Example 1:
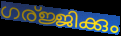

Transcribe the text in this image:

ഗര്ജ്ജിക്കും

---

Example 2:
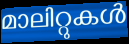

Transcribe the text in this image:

മാലിറ്റുകൾ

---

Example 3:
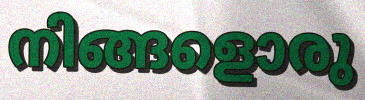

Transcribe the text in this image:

നിങ്ങളൊരു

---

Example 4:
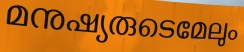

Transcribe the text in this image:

മനുഷ്യരുടെമേലും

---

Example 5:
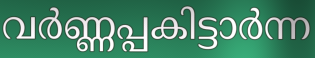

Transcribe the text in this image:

വർണ്ണപ്പകിട്ടാർന്ന